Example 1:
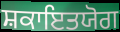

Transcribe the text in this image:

ਸ਼ਕਾਇਤਯੋਗ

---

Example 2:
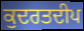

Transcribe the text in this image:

ਕੁਦਰਤਦੀਪ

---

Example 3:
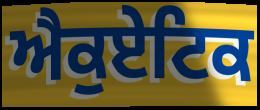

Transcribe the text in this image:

ਐਕੁਏਟਿਕ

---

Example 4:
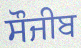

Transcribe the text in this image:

ਸੌਜੀਬ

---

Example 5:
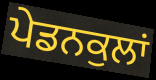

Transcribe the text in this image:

ਪੇਡਨਕੁਲਾਂ